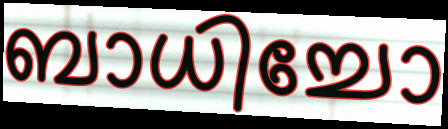
ബാധിച്ചോ